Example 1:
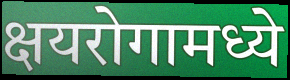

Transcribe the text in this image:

क्षयरोगामध्ये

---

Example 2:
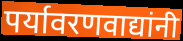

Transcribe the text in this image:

पर्यावरणवाद्यांनी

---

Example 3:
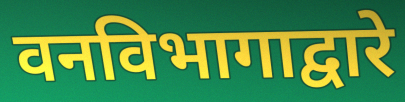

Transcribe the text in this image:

वनविभागाद्वारे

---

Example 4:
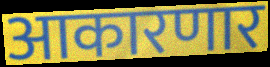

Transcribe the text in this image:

आकारणार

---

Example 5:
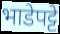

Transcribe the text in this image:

भाडेपट्टे